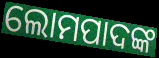
ଲୋମପାଦଙ୍କ